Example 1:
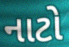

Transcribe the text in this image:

નાટો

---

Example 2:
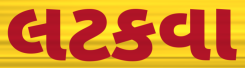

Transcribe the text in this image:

લટકવા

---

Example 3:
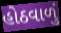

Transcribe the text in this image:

હોઠવાળું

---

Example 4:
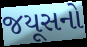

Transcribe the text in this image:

જયૂસનો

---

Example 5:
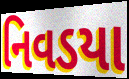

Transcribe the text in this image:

નિવડયા